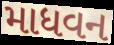
માધવન